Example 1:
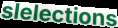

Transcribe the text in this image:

slelections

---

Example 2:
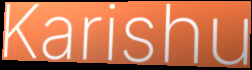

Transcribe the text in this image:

Karishu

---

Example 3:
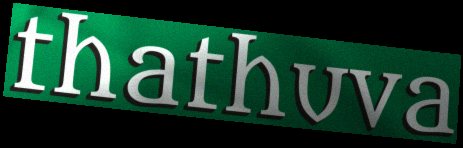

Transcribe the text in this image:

thathuva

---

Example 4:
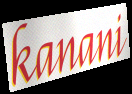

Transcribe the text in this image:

kanani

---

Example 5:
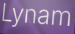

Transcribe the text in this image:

Lynam